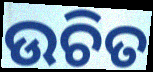
ଉଚିତ